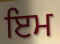
ਇਮ